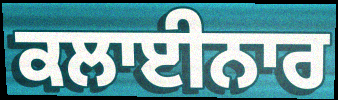
ਕਲਾਈਨਾਰ